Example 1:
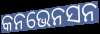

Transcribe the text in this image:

କନଭେନସନ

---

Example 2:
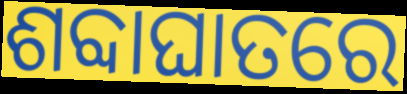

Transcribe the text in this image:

ଶବ୍ଦାଘାତରେ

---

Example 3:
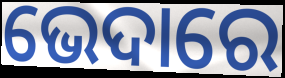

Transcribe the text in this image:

ଭେଦାରେ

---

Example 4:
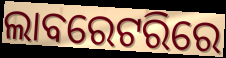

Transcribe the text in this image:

ଲାବରେଟରିରେ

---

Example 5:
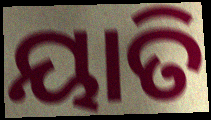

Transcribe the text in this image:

ୟାତି